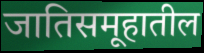
जातिसमूहातील